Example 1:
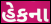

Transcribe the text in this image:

હેકના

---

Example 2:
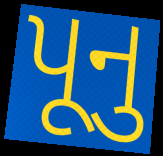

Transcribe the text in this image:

પૂનુ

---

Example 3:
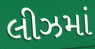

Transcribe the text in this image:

લીઝમાં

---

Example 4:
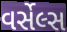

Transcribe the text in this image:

વર્સેલ્સ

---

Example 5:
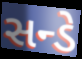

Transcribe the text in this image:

સન્ડે